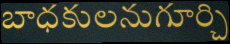
బాధకులనుగూర్చి